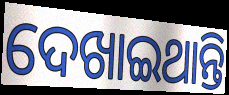
ଦେଖାଇଥାନ୍ତି